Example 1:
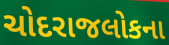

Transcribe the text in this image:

ચોદરાજલોકના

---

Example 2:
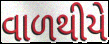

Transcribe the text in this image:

વાળથીયે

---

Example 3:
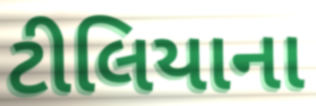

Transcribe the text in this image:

ટીલિયાના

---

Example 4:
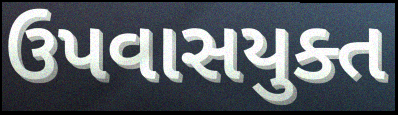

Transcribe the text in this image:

ઉપવાસયુક્ત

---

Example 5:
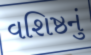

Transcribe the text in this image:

વશિષ્ઠનું